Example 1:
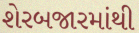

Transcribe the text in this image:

શેરબજારમાંથી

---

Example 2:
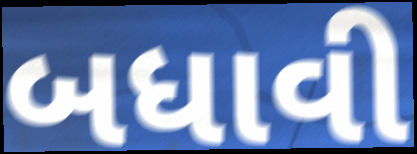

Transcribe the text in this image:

બધાવી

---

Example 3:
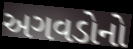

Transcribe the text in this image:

અગવડોનો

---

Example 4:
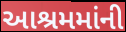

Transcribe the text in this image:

આશ્રમમાંની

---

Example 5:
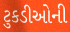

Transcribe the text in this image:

ટુકડીઓની